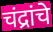
चंद्रांचे